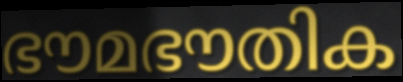
ഭൗമഭൗതിക